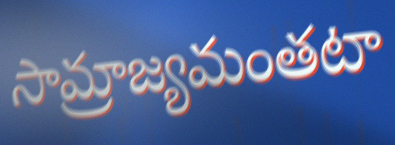
సామ్రాజ్యమంతటా